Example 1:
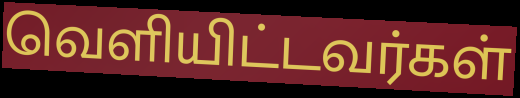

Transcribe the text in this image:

வெளியிட்டவர்கள்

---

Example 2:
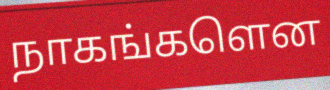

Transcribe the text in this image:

நாகங்களென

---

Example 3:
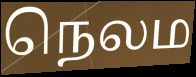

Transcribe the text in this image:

நெலம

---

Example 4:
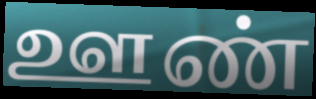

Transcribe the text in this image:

ஊண்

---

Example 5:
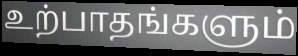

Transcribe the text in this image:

உற்பாதங்களும்